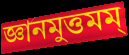
জ্ঞানমুত্তমম্